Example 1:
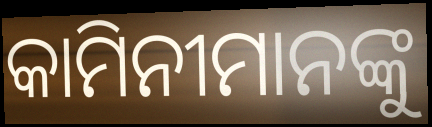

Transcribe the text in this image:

କାମିନୀମାନଙ୍କୁ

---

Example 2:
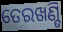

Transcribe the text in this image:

ତେରଖଣ୍ଡି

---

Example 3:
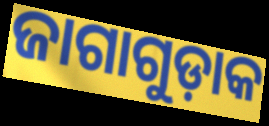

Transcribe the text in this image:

ଜାଗାଗୁଡ଼ାକ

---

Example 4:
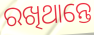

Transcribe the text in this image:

ରଖିଥାନ୍ତେ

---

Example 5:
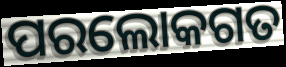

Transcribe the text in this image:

ପରଲୋକଗତ